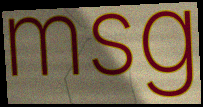
msg